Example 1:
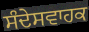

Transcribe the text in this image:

ਸੰਦੇਸਵਾਹਕ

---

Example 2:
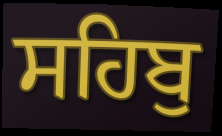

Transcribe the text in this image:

ਸਹਿਬੁ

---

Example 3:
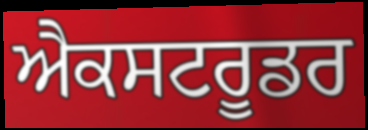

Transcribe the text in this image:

ਐਕਸਟਰੂਡਰ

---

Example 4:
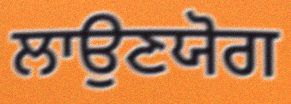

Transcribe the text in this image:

ਲਾਉਣਯੋਗ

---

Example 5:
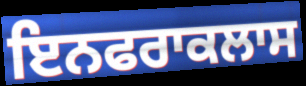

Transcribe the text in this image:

ਇਨਫਰਾਕਲਾਸ